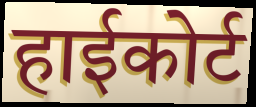
हाईकोर्ट